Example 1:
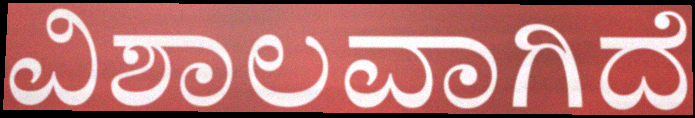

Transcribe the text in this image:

ವಿಶಾಲವಾಗಿದೆ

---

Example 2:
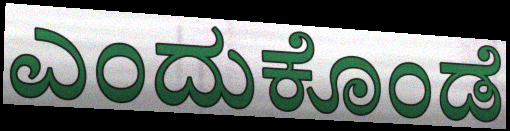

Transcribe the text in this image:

ಎಂದುಕೊಂಡೆ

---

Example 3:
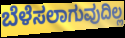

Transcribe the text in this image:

ಬೆಳೆಸಲಾಗುವುದಿಲ್ಲ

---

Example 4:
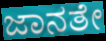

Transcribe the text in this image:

ಜಾನತೇ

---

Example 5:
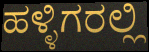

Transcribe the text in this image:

ಹಳ್ಳಿಗರಲ್ಲಿ